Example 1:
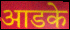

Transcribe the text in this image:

आडके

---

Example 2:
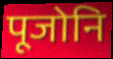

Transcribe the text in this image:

पूजोनि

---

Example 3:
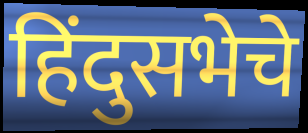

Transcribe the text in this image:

हिंदुसभेचे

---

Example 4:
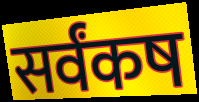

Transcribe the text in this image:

सर्वंकष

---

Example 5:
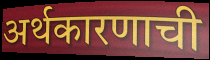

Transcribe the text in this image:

अर्थकारणाची